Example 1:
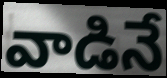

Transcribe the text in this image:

వాడినే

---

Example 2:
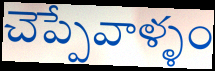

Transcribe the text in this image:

చెప్పేవాళ్ళం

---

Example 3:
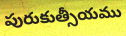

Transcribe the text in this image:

పురుకుత్సీయము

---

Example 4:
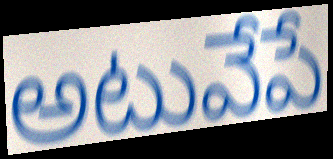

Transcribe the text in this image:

అటువేపే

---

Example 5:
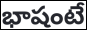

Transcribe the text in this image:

భాషంటే